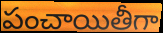
పంచాయితీగా